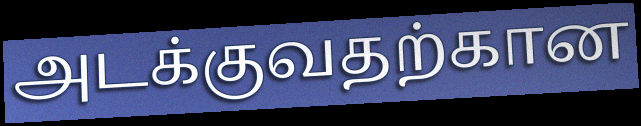
அடக்குவதற்கான